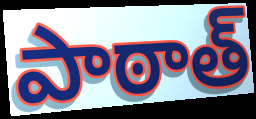
పాఠాత్